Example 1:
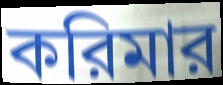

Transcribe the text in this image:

করিমার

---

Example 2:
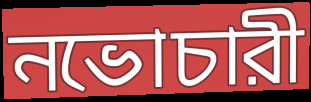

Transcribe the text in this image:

নভোচারী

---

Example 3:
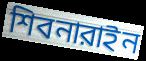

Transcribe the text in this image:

শিবনারাইন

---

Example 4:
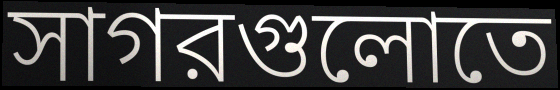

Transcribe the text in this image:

সাগরগুলোতে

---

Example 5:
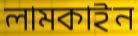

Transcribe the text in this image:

লামকাইন